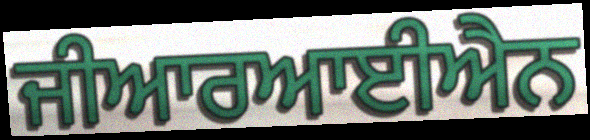
ਜੀਆਰਆਈਐਨ